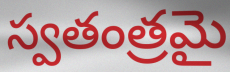
స్వతంత్రమై